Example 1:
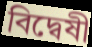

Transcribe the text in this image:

বিদ্বেষী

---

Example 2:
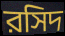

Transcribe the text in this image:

রসিদ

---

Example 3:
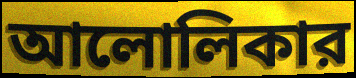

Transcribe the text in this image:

আলোলিকার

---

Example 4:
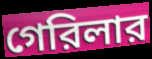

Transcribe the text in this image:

গেরিলার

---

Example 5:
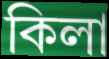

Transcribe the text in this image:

কিলা